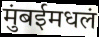
मुंबईमधलं